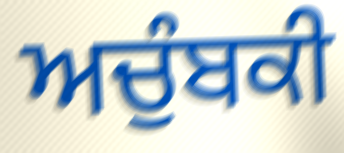
ਅਚੁੰਬਕੀ